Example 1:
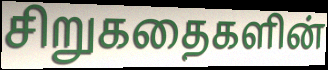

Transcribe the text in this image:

சிறுகதைகளின்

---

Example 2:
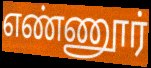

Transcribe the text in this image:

எண்ணூர்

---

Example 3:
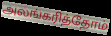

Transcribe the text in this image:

அலங்கரித்தோம்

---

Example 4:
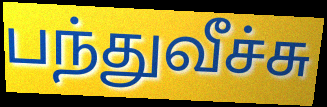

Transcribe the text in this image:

பந்துவீச்சு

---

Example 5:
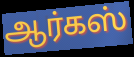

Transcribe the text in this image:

ஆர்கஸ்